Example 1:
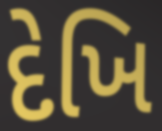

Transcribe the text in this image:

દેખિ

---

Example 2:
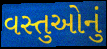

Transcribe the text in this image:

વસ્તુઓનું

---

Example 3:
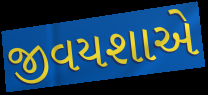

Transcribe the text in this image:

જીવયશાએ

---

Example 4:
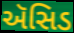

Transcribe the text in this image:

ઍસિડ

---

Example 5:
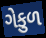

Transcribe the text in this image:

ગેકુળ